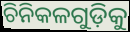
ଚିନିକଳଗୁଡ଼ିକୁ